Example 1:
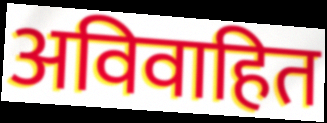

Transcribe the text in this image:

अविवाहित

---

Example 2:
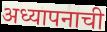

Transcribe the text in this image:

अध्यापनाची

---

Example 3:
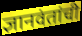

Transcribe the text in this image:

ज्ञानवंतांची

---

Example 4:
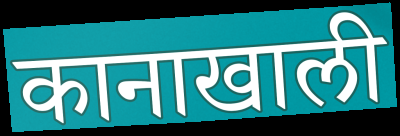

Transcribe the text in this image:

कानाखाली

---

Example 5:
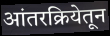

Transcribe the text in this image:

आंतरक्रियेतून